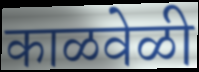
काळवेळी